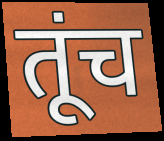
तूंच